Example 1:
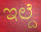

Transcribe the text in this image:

ಇಲ್ದೆ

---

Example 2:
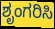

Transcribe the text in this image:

ಶೃಂಗರಿಸಿ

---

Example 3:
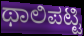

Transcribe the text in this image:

ಥಾಲಿಪಟ್ಟಿ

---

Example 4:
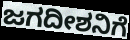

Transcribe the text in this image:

ಜಗದೀಶನಿಗೆ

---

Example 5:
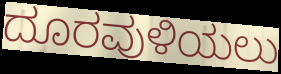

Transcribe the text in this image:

ದೂರವುಳಿಯಲು